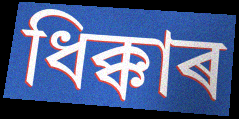
ধিক্কাৰ